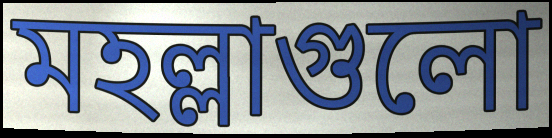
মহল্লাগুলো